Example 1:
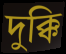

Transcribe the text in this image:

দুক্কি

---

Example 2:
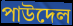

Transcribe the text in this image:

পাউদেল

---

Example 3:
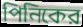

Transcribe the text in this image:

পিনিকের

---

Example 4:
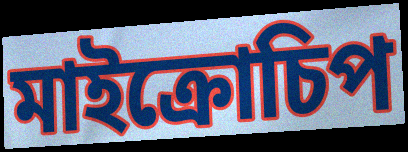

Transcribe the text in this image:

মাইক্রোচিপ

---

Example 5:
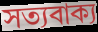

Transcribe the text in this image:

সত্যবাক্য